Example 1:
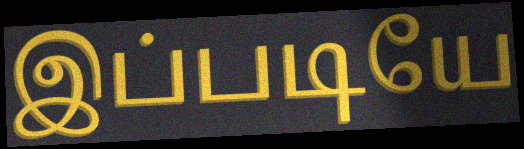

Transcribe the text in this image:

இப்படியே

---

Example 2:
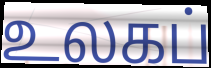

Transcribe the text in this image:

உலகப்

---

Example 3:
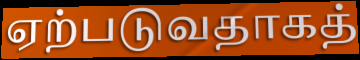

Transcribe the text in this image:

ஏற்படுவதாகத்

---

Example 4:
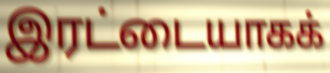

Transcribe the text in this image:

இரட்டையாகக்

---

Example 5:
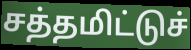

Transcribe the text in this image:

சத்தமிட்டுச்